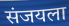
संजयला